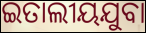
ଇତାଲୀୟଯୁବା